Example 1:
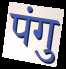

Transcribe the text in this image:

पंगु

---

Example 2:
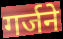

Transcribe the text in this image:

गर्जने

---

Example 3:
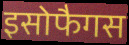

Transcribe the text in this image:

इसोफैगस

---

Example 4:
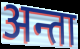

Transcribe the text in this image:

अन्ता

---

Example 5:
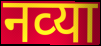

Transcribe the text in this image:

नव्‍या